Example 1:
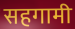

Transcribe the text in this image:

सहगामी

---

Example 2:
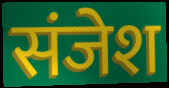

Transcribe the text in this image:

संजेश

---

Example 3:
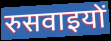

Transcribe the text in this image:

रुसवाइयों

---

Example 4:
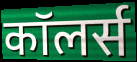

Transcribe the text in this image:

कॉलर्स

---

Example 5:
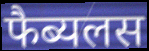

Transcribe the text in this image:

फैब्यलस